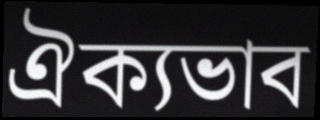
ঐক্যভাব